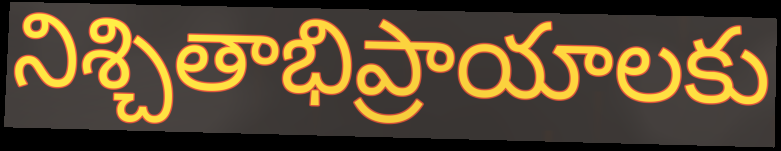
నిశ్చితాభిప్రాయాలకు